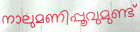
നാലുമണിപ്പൂവുമുണ്ട്